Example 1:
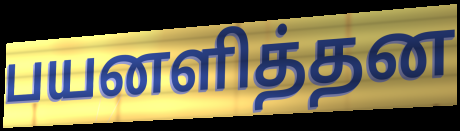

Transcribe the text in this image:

பயனளித்தன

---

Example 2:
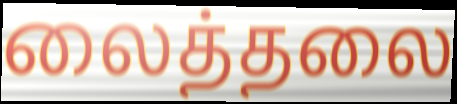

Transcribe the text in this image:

லைத்தலை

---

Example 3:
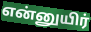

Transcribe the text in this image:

என்னுயிர்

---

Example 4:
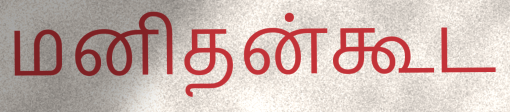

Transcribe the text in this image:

மனிதன்கூட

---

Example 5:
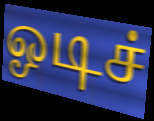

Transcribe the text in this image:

ஓடிச்